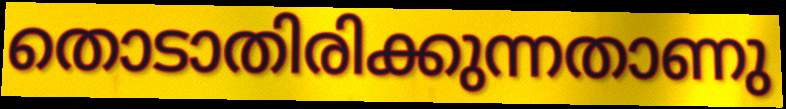
തൊടാതിരിക്കുന്നതാണു